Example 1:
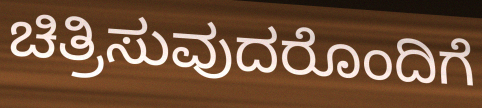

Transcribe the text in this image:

ಚಿತ್ರಿಸುವುದರೊಂದಿಗೆ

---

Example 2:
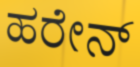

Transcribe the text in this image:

ಹರೇನ್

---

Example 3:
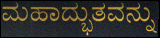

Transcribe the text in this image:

ಮಹಾದ್ಭುತವನ್ನು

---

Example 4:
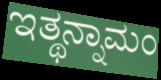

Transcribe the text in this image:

ಇತ್ಥನ್ನಾಮಂ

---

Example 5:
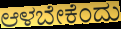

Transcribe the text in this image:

ಆಳಬೇಕೆಂದು